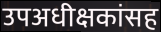
उपअधीक्षकांसह